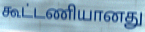
கூட்டணியானது